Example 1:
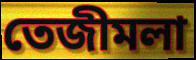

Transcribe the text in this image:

তেজীমলা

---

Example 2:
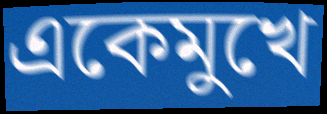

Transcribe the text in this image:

একেমুখে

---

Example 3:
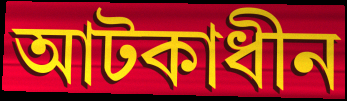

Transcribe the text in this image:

আটকাধীন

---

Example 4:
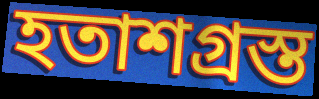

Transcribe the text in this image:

হতাশগ্ৰস্ত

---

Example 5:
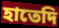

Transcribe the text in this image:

হাতেদি